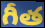
గీత